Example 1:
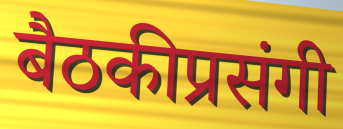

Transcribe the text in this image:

बैठकीप्रसंगी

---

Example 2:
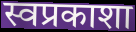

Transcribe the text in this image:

स्वप्रकाशा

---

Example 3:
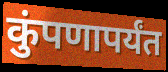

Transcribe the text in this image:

कुंपणापर्यंत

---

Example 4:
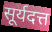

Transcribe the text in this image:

सूर्यदत्त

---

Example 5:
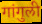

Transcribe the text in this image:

गांगुली